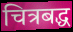
चित्रबद्ध